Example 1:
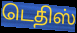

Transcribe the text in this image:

டெதிஸ்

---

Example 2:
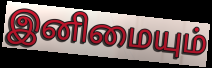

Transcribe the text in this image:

இனிமையும்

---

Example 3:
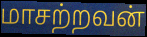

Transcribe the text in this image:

மாசற்றவன்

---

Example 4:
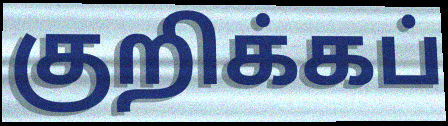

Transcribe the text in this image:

குறிக்கப்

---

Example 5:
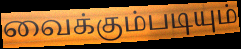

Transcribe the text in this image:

வைக்கும்படியும்